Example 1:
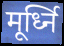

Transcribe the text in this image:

मूर्ध्नि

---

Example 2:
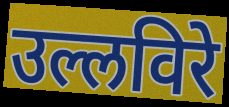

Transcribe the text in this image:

उल्लविरे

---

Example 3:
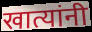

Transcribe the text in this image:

खात्यांनी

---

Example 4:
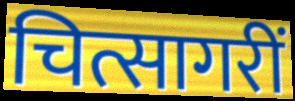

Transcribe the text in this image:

चित्सागरीं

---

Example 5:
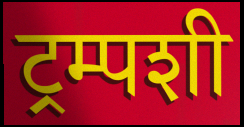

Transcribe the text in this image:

ट्रम्पशी